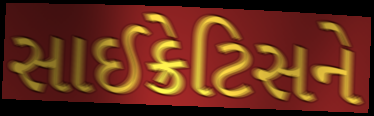
સાઈક્રેટિસને